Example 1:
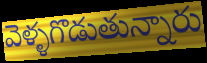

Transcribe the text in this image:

వెళ్ళగొడుతున్నారు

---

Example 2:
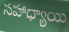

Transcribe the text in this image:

సహాధ్యాయి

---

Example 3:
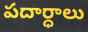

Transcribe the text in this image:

పదార్ధాలు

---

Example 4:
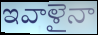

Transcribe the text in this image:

ఇవాళైనా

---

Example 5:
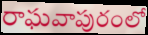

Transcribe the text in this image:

రాఘవాపురంలో